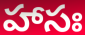
హాసః